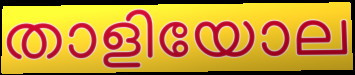
താളിയോല